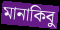
মানাকিবু